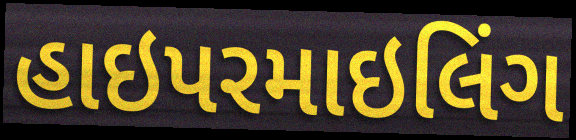
હાઇપરમાઇલિંગ